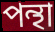
পন্থা